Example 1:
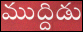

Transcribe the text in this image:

ముద్దిడు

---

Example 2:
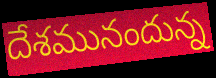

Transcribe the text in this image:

దేశమునందున్న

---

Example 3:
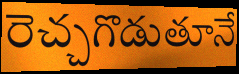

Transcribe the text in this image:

రెచ్చగొడుతూనే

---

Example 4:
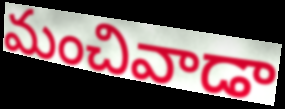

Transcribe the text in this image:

మంచివాడా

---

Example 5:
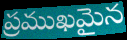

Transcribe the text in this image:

ప్రముఖమైన